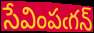
సేవింపఁగన్